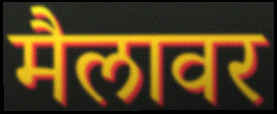
मैलावर